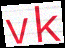
vk